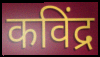
कविंद्र